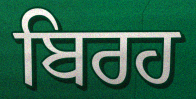
ਬਿਰਹ